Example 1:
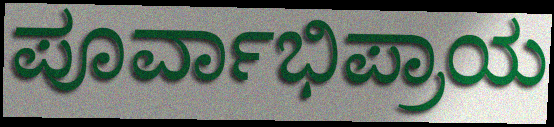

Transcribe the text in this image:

ಪೂರ್ವಾಭಿಪ್ರಾಯ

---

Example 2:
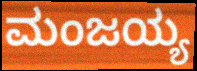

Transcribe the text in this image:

ಮಂಜಯ್ಯ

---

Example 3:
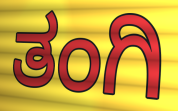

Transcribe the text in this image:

ತಂಗಿ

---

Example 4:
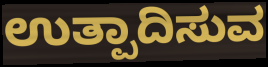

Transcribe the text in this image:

ಉತ್ಪಾದಿಸುವ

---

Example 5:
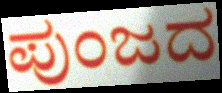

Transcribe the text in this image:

ಪುಂಜದ